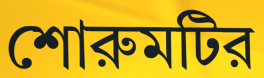
শোরুমটির